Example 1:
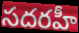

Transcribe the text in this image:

సదరహీ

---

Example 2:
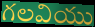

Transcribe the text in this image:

గలవియు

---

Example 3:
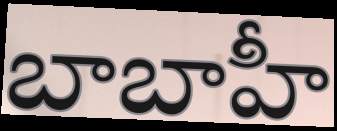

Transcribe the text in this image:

బాబాహీ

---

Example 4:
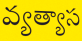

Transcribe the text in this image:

వ్యత్యాస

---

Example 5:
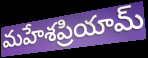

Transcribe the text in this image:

మహేశప్రియామ్